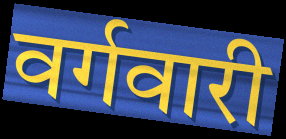
वर्गवारी